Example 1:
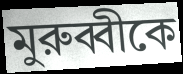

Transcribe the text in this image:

মুরুব্বীকে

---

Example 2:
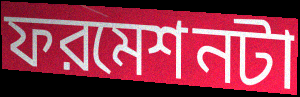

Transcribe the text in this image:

ফরমেশনটা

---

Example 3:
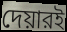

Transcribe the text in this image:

দেয়ারই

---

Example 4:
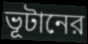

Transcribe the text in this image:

ভূটানের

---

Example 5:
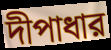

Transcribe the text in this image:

দীপাধার